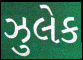
ઝુલેક